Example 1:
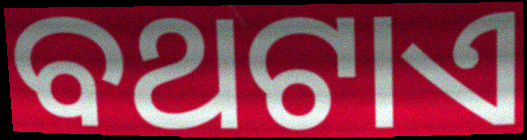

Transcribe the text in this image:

ବଥଟାଏ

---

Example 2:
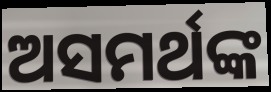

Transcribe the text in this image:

ଅସମର୍ଥଙ୍କ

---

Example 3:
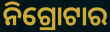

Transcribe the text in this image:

ନିଗ୍ରୋଟାର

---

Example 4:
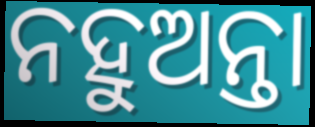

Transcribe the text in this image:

ନହୁଅନ୍ତା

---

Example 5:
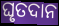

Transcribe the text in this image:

ଘୃତଦାନ